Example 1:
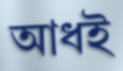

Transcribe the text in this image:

আধই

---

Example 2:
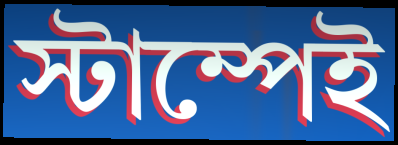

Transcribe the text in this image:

স্টাম্পেই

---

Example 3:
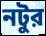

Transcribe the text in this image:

নটুর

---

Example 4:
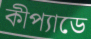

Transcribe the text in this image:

কীপ্যাডে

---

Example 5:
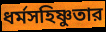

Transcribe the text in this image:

ধর্মসহিষ্ণুতার